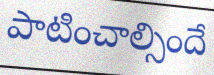
పాటించాల్సిందే